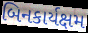
બિનકાર્યક્ષમ